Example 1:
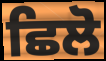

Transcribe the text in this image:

ਛਿਲੋ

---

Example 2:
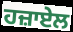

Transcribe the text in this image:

ਹਜ਼ਾਏਲ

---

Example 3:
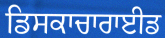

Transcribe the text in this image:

ਡਿਸਕਾਚਾਰਾਈਡ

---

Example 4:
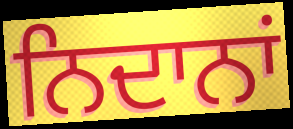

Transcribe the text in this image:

ਨਿਦਾਨਾਂ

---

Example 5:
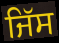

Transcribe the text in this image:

ਜਿੱਸ